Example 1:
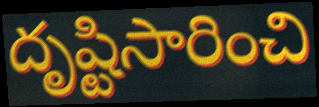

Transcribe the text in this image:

దృష్టిసారించి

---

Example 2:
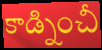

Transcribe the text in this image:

కాడ్నించీ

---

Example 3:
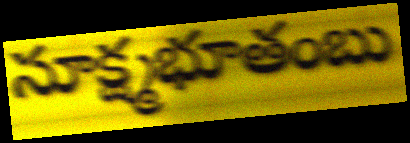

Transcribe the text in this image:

సూక్ష్మభూతంబు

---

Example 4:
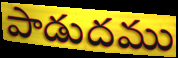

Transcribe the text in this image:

పాడుదము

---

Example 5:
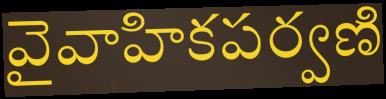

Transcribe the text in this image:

వైవాహికపర్వణి